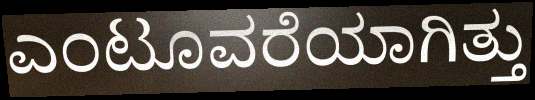
ಎಂಟೂವರೆಯಾಗಿತ್ತು